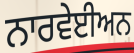
ਨਾਰਵੇਈਅਨ